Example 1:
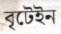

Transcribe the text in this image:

বৃটেইন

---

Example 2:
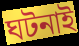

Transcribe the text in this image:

ঘটনাই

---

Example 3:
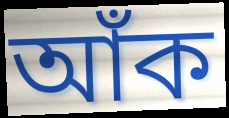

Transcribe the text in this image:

আঁক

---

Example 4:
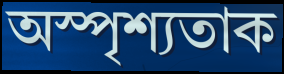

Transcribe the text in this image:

অস্পৃশ্যতাক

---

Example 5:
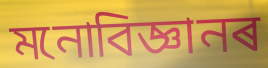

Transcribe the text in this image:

মনোবিজ্ঞানৰ